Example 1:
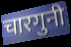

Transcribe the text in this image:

चारगुनी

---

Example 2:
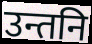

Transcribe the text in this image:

उन्तनि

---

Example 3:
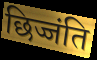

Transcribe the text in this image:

छिज्जंति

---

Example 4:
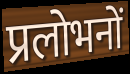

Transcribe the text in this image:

प्रलोभनों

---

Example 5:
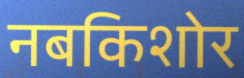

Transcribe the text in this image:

नबकिशोर